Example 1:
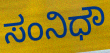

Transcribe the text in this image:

ಸಂನಿಧೌ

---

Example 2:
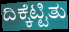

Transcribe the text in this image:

ದಿಕ್ಕೆಟ್ಟಿತು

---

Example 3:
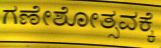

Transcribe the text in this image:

ಗಣೇಶೋತ್ಸವಕ್ಕೆ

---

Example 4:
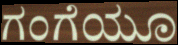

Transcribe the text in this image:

ಗಂಗೆಯೂ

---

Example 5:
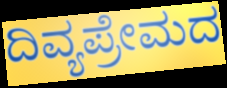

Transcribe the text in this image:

ದಿವ್ಯಪ್ರೇಮದ